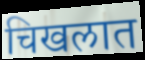
चिखलात